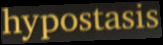
hypostasis